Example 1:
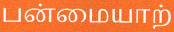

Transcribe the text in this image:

பன்மையாற்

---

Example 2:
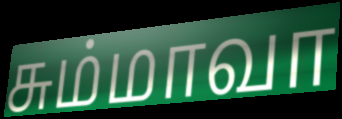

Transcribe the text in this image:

சும்மாவா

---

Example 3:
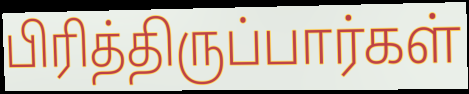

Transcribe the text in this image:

பிரித்திருப்பார்கள்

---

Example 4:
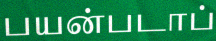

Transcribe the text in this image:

பயன்படாப்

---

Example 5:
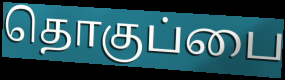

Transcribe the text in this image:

தொகுப்பை